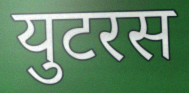
युटरस